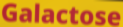
Galactose